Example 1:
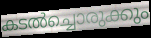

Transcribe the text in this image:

കടൽച്ചൊരുക്കും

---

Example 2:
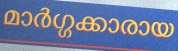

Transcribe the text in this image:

മാർഗ്ഗക്കാരായ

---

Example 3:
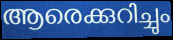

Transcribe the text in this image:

ആരെക്കുറിച്ചും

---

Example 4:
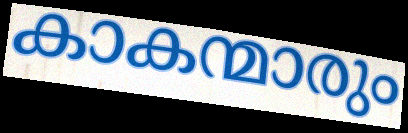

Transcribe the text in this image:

കാകന്മാരും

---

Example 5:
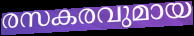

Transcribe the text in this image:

രസകരവുമായ